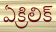
ఏక్రిలిక్